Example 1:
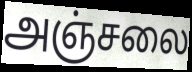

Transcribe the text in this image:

அஞ்சலை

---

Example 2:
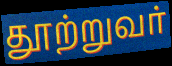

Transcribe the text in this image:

தூற்றுவர்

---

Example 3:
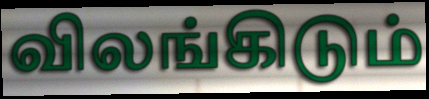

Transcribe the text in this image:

விலங்கிடும்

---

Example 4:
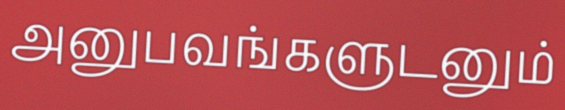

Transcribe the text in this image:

அனுபவங்களுடனும்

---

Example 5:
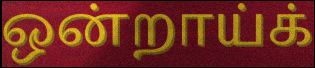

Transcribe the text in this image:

ஒன்றாய்க்